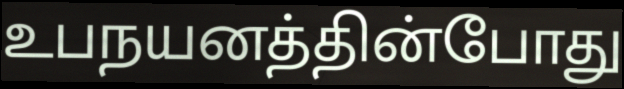
உபநயனத்தின்போது